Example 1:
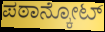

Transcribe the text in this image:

ಪಠಾನ್ಕೋಟ್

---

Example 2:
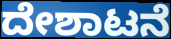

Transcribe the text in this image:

ದೇಶಾಟನೆ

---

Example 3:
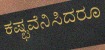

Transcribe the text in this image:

ಕಷ್ಟವೆನಿಸಿದರೂ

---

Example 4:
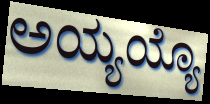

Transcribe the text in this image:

ಅಯ್ಯಯ್ಯೊ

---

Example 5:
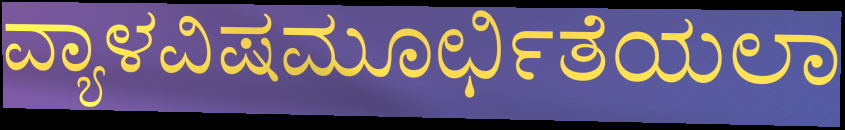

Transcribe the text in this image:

ವ್ಯಾಳವಿಷಮೂರ್ಛಿತೆಯಲಾ